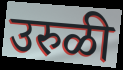
उरुळी